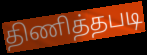
திணித்தபடி